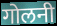
गोलनी